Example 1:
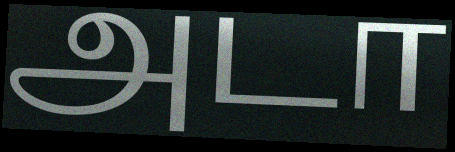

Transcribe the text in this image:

அடா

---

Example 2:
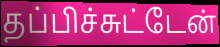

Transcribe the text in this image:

தப்பிச்சுட்டேன்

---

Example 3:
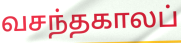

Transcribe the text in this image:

வசந்தகாலப்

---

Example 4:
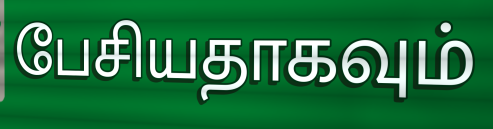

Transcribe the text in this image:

பேசியதாகவும்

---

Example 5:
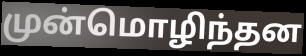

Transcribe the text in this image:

முன்மொழிந்தன